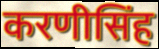
करणीसिंह